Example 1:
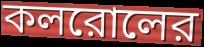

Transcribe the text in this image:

কলরোলের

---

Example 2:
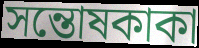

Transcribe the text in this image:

সন্তোষকাকা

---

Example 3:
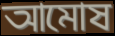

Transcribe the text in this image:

আমোষ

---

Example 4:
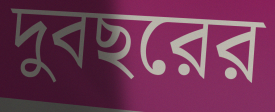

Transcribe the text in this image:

দুবছরের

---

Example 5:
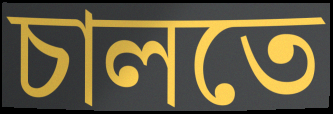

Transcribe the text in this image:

চালতে